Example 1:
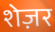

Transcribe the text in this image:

शेज़र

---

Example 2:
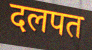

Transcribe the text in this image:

दलपत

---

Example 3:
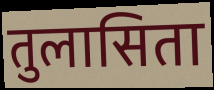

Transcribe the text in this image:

तुलासिता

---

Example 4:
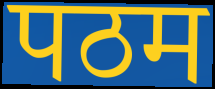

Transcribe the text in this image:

पठम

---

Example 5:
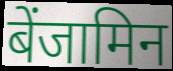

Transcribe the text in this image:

बेंजामिन